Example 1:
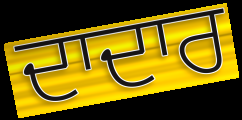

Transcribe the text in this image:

ਦਾਦਾਰ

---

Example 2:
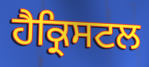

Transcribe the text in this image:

ਹੈਕ੍ਰਿਸਟਲ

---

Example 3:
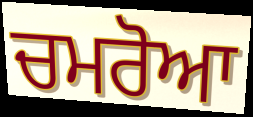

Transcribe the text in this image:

ਚਮਰੋਆ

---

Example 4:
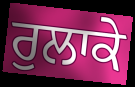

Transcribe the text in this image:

ਰੁਲਾਕੇ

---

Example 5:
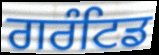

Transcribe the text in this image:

ਗਰੰਟਿਡ